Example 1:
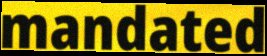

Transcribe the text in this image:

mandated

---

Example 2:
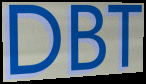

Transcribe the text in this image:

DBT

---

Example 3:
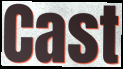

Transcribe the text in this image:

Cast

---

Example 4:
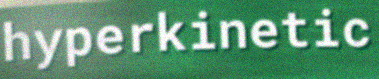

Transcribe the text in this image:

hyperkinetic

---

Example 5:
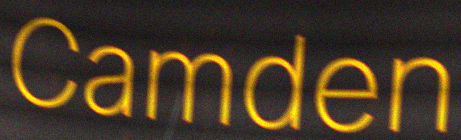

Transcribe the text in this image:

Camden